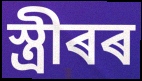
স্ত্ৰীৰৰ